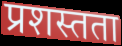
प्रशस्तता